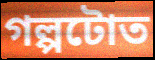
গল্পটোত